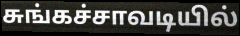
சுங்கச்சாவடியில்